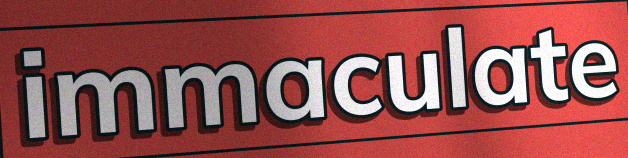
immaculate